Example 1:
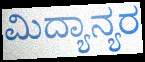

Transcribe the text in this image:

ಮಿದ್ಯಾನ್ಯರ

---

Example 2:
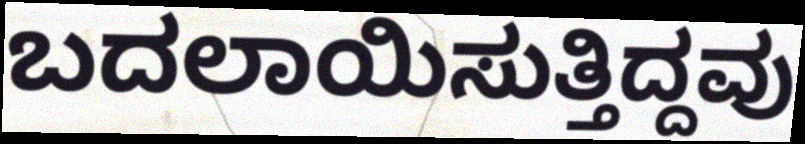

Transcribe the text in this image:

ಬದಲಾಯಿಸುತ್ತಿದ್ದವು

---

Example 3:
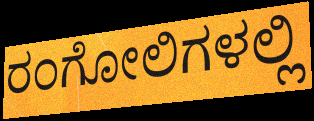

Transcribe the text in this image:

ರಂಗೋಲಿಗಳಲ್ಲಿ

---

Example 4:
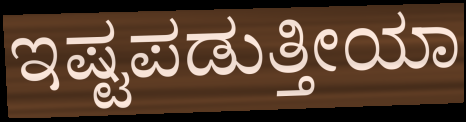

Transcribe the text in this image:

ಇಷ್ಟಪಡುತ್ತೀಯಾ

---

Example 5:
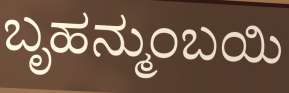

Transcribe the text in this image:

ಬೃಹನ್ಮುಂಬಯಿ